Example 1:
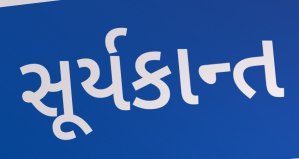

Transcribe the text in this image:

સૂર્યકાન્ત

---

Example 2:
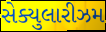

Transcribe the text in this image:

સેક્યુલારીઝમ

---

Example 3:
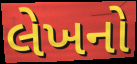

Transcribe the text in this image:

લેખનો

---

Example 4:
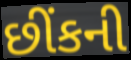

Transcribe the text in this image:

છીંકની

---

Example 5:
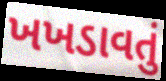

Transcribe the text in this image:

ખખડાવતું